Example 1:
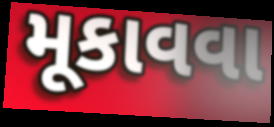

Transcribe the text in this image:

મૂકાવવા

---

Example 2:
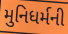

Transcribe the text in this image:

મુનિધર્મની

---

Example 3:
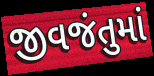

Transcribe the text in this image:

જીવજંતુમાં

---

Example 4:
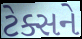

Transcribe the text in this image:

ટેક્સને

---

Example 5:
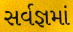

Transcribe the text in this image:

સર્વજ્ઞમાં